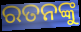
ରତନଙ୍କୁ